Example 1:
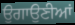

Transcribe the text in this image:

ਉਗਾਉਣੀਆਂ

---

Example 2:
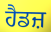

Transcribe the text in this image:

ਹੈਡਜ਼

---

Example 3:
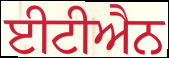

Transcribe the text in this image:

ਈਟੀਐਨ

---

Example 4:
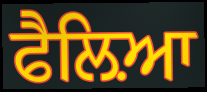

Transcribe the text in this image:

ਫੈਲ਼ਿਆ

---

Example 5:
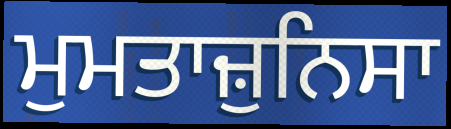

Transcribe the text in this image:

ਮੁਮਤਾਜ਼ੁਨਿਸਾ